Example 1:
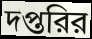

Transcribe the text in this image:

দপ্তরির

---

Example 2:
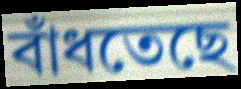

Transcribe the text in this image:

বাঁধতেছে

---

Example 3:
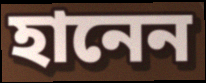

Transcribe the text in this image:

হানেন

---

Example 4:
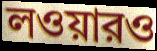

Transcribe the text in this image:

লওয়ারও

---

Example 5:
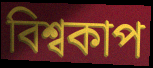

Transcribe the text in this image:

বিশ্বকাপ